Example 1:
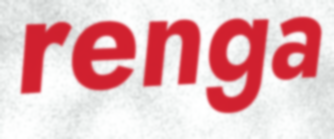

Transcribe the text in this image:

renga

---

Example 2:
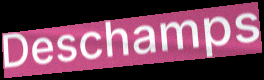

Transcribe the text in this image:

Deschamps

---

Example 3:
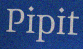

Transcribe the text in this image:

Pipit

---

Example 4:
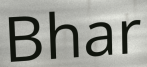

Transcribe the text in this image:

Bhar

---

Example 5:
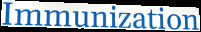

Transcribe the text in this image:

Immunization